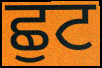
ਛੁਟ